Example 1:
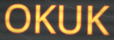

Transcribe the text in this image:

OKUK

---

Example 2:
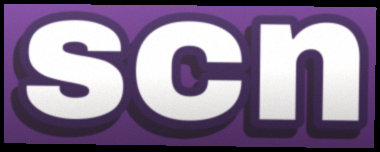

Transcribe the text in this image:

scn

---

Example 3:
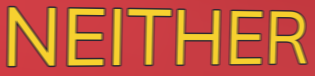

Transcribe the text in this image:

NEITHER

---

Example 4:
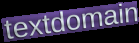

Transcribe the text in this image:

textdomain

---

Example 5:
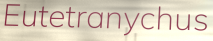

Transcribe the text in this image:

Eutetranychus